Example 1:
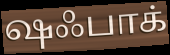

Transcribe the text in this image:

ஷஃபாக்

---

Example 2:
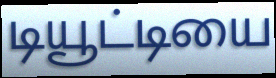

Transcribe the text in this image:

டியூட்டியை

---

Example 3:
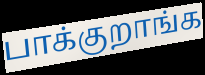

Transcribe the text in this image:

பாக்குறாங்க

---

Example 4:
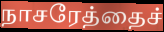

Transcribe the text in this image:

நாசரேத்தைச்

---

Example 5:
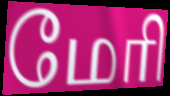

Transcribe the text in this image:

மேரி